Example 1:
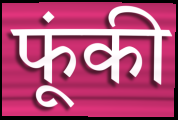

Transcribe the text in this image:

फूंकी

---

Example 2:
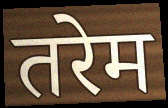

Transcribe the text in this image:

तरेम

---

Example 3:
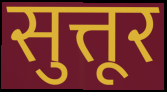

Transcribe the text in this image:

सुत्तूर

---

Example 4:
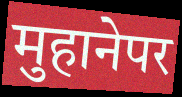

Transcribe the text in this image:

मुहानेपर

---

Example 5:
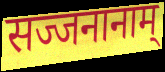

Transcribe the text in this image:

सज्जनानाम्